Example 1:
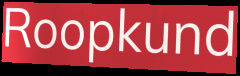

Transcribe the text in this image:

Roopkund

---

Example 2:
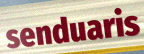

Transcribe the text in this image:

senduaris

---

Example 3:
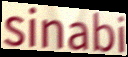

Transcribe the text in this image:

sinabi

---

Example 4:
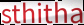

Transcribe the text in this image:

sthitha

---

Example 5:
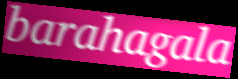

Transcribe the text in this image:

barahagala